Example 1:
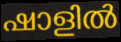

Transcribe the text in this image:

ഷാളിൽ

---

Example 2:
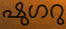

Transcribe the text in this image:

ഷുഗറു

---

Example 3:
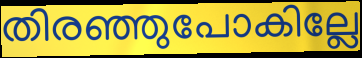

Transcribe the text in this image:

തിരഞ്ഞുപോകില്ലേ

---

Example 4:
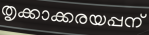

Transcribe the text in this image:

തൃക്കാക്കരയപ്പന്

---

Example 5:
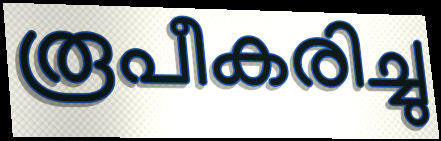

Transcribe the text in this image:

രൂപീകരിച്ചു